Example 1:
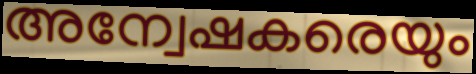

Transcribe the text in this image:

അന്വേഷകരെയും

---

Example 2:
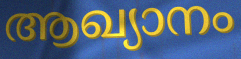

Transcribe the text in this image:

ആഖ്യാനം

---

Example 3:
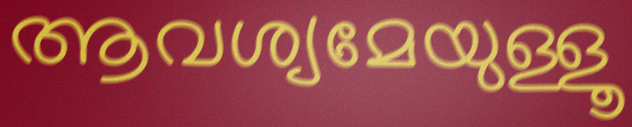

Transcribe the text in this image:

ആവശ്യമേയുള്ളൂ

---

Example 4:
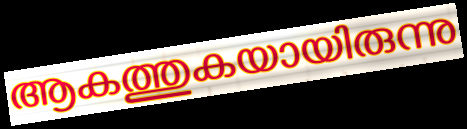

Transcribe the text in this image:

ആകത്തുകയായിരുന്നു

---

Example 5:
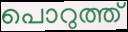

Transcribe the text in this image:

പൊറുത്ത്